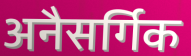
अनैसर्गिक